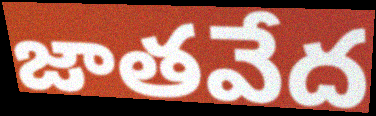
జాతవేద